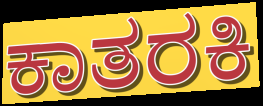
ಕಾತರಕಿ